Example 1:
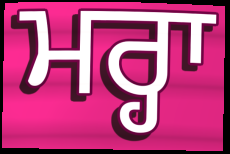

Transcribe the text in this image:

ਮਰ੍ਹਾ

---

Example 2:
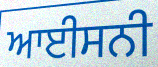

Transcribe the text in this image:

ਆਈਸਨੀ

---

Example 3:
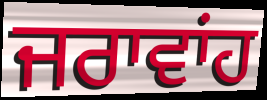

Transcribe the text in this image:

ਜਰਾਵਾਂਹ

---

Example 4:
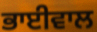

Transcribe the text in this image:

ਭਾਈਵਾਲ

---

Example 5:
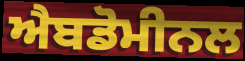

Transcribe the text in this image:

ਐਬਡੋਮੀਨਲ